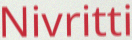
Nivritti